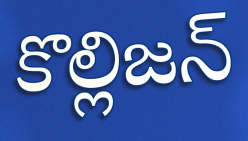
కొల్లిజన్